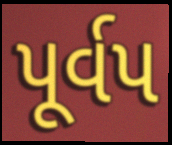
પૂર્વપ